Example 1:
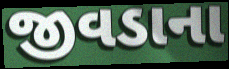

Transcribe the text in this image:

જીવડાના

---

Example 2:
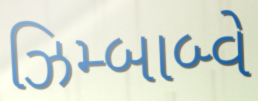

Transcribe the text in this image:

ઝિમ્બાબ્વે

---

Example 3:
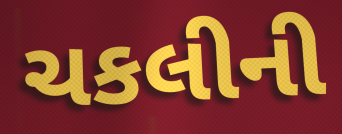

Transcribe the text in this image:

ચકલીની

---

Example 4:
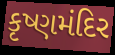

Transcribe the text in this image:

કૃષ્ણમંદિર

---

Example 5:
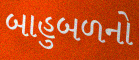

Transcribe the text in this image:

બાહુબળનો